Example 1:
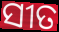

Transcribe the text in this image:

ସୀତ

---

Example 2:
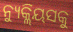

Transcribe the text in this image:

ନ୍ୟୁକ୍ଲିୟସକୁ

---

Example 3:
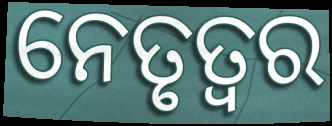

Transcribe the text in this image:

ନେତୃତ୍ୱର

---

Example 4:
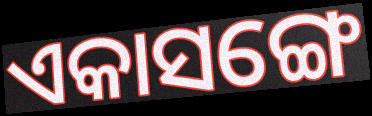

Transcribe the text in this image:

ଏକାସଙ୍ଗେ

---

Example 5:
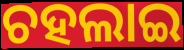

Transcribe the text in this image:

ଚହଲାଇ